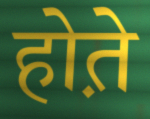
होत़े